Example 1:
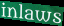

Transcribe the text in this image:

inlaws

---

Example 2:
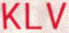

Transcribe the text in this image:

KLV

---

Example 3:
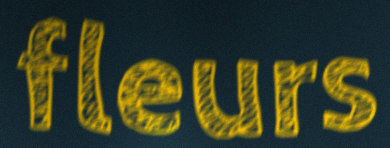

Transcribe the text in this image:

fleurs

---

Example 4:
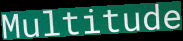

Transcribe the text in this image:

Multitude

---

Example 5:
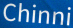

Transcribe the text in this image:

Chinni